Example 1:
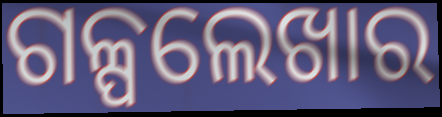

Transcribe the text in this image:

ଗଳ୍ପଲେଖାର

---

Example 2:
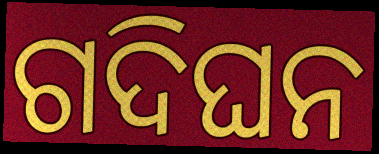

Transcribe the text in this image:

ଗଦିଘନ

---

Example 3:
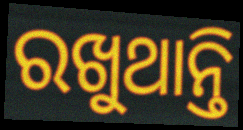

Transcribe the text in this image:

ରଖୁଥାନ୍ତି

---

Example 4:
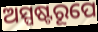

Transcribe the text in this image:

ଅସ୍ପଷ୍ଟରୂପେ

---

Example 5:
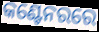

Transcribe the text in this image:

କଣ୍ଟେନରରେ